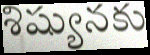
శిష్యునకు